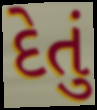
દેતું